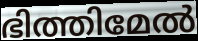
ഭിത്തിമേൽ